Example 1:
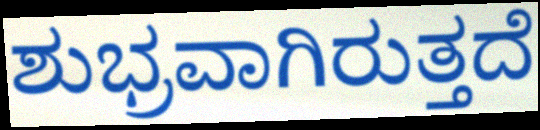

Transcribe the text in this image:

ಶುಭ್ರವಾಗಿರುತ್ತದೆ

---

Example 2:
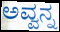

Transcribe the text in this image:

ಅವ್ವನ್ನ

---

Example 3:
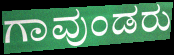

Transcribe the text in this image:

ಗಾವುಂಡರು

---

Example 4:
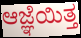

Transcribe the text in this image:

ಆಜ್ಞೆಯಿತ್ತ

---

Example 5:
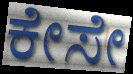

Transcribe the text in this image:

ಕೇಸೇ